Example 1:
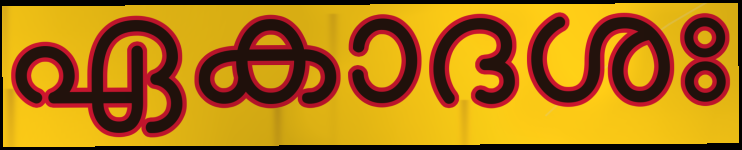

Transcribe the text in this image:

ഏകാദശഃ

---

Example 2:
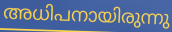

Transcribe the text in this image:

അധിപനായിരുന്നു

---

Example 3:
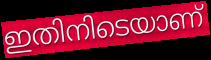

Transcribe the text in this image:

ഇതിനിടെയാണ്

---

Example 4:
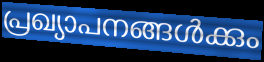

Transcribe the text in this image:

പ്രഖ്യാപനങ്ങൾക്കും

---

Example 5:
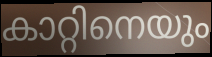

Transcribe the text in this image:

കാറ്റിനെയും